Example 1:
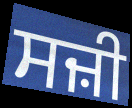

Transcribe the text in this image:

ਸਜ਼ੀ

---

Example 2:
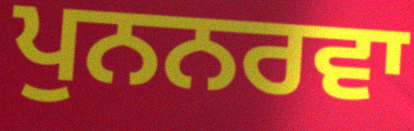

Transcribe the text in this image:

ਪੁਨਨਰਵਾ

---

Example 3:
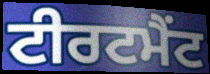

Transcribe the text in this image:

ਟੀਰਟਮੈਂਟ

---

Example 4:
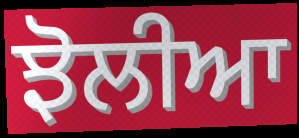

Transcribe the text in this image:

ਝੋਲੀਆ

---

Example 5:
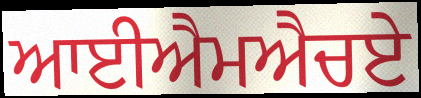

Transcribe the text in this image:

ਆਈਐਮਐਚਏ